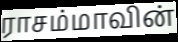
ராசம்மாவின்